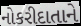
નોકરીદાતાને